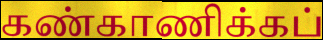
கண்காணிக்கப்